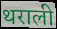
थराली